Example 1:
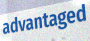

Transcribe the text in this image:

advantaged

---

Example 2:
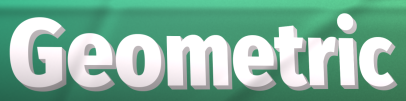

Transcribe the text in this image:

Geometric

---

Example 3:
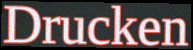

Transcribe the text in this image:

Drucken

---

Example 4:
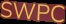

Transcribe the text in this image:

SWPC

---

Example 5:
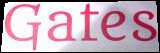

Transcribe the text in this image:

Gates